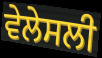
ਵੇਲੇਸਲੀ